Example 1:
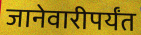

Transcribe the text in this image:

जानेवारीपर्यंत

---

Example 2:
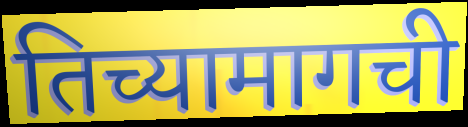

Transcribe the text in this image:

तिच्यामागची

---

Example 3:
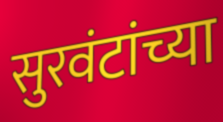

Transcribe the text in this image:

सुरवंटांच्या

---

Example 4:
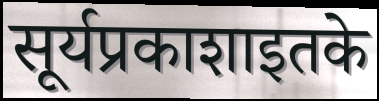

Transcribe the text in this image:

सूर्यप्रकाशाइतके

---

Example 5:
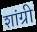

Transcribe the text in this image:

शांग्री